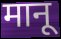
मानू